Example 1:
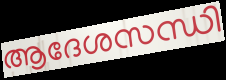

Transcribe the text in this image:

ആദേശസന്ധി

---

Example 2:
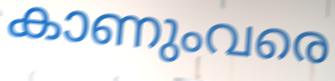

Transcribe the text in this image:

കാണുംവരെ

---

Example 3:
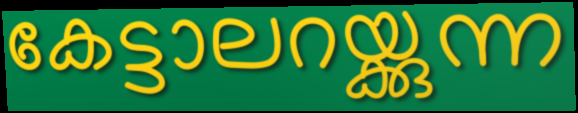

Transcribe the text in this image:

കേട്ടാലറയ്ക്കുന്ന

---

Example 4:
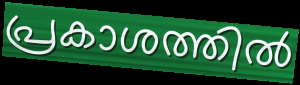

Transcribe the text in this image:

പ്രകാശത്തിൽ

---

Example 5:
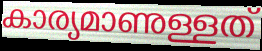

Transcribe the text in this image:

കാര്യമാണുള്ളത്